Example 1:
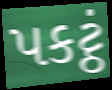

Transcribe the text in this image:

પકટ્ઠં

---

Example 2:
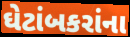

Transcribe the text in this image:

ઘેટાંબકરાંના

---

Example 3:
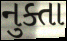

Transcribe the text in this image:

નુક્તા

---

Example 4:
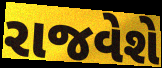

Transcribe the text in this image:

રાજવેશે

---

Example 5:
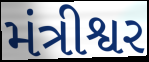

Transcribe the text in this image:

મંત્રીશ્વર